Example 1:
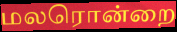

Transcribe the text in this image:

மலரொன்றை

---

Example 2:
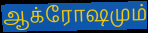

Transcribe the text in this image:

ஆக்ரோஷமும்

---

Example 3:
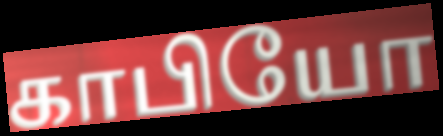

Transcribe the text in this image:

காபியோ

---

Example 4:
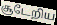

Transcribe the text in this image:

சூடேறிய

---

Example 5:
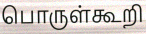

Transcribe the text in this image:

பொருள்கூறி